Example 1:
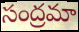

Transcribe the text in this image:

సంద్రమా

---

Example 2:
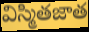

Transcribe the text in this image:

విస్మితజాత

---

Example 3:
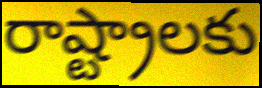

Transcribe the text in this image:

రాష్ట్రాలకు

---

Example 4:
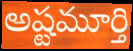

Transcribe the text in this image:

అష్టమూర్తి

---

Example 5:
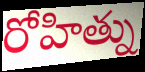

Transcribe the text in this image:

రోహిత్ను